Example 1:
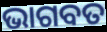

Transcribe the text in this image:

ଭାଗବତ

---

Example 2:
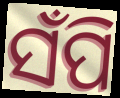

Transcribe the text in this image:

ସଁପି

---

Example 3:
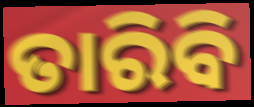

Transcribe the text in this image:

ତାରିବି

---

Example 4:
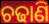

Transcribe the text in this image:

ଚଢାଣି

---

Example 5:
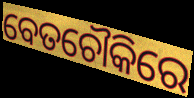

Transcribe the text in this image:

ବେତଚୌକିରେ